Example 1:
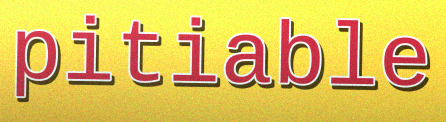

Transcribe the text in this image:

pitiable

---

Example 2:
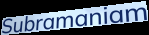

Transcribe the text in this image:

Subramaniam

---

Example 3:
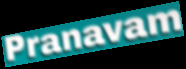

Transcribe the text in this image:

Pranavam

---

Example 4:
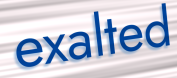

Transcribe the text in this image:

exalted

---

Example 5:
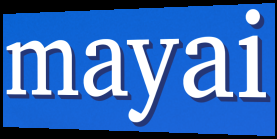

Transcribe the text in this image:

mayai